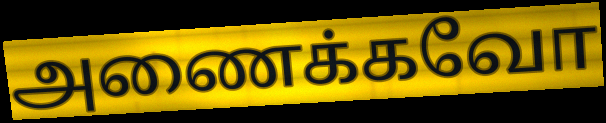
அணைக்கவோ